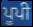
ਪੂਪੀ